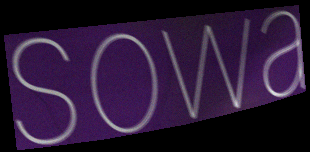
sowa